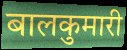
बालकुमारी